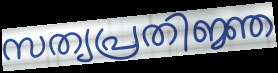
സത്യപ്രതിജ്ഞ